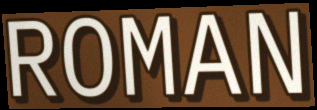
ROMAN